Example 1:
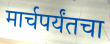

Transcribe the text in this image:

मार्चपर्यंतचा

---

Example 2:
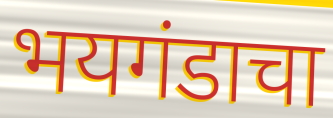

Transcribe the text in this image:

भयगंडाचा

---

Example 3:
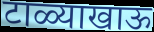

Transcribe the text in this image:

टाळ्याखाऊ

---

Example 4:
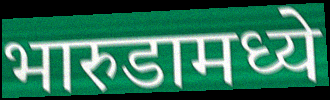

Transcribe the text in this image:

भारुडामध्ये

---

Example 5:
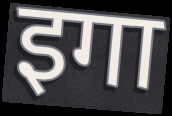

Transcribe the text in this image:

इगा